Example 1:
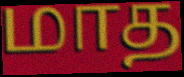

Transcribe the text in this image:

மாத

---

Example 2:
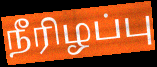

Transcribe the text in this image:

நீரிழப்பு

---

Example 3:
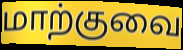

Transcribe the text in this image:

மாற்குவை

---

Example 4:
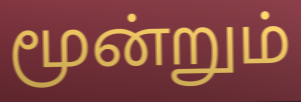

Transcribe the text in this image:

மூன்றும்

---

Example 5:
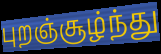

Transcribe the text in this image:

புறஞ்சூழ்ந்து